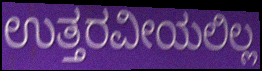
ಉತ್ತರವೀಯಲಿಲ್ಲ